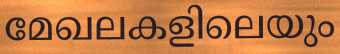
മേഖലകളിലെയും